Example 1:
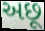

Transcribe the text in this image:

અછૂ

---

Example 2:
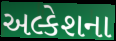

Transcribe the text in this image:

અલ્કેશના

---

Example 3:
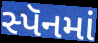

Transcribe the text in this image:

સ્પૅનમાં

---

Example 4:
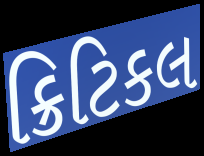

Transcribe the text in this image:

ક્રિટિકલ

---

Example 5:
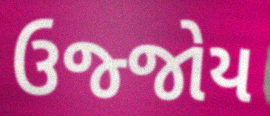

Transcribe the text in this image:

ઉજ્જોય